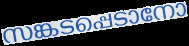
സങ്കടപ്പെടാനോ